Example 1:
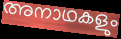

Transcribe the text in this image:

അനാഥകളും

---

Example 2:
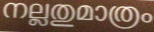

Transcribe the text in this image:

നല്ലതുമാത്രം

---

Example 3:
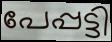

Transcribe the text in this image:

പേപ്പട്ടി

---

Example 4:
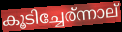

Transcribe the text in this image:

കൂടിച്ചേര്ന്നാല്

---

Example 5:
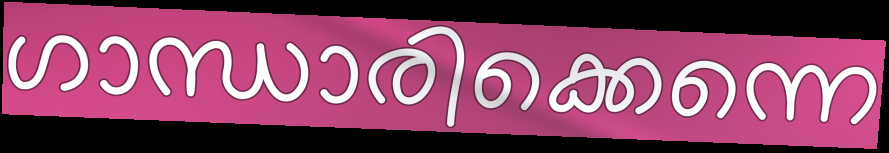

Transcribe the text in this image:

ഗാന്ധാരിക്കെന്നെ